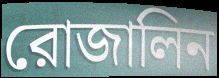
রোজালিন